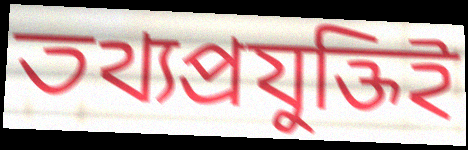
তথ্যপ্রযুক্তিই